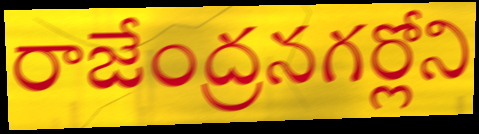
రాజేంద్రనగర్లోని